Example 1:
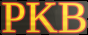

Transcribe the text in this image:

PKB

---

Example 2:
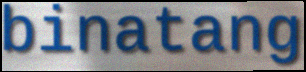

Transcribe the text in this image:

binatang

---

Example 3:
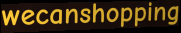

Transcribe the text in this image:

wecanshopping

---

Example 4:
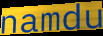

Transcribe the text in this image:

namdu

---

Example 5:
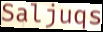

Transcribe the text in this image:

Saljuqs